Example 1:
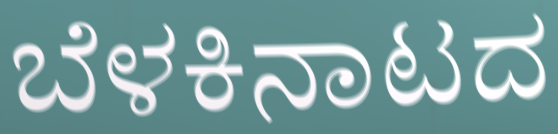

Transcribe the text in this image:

ಬೆಳಕಿನಾಟದ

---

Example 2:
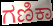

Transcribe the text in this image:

ಗಣಿಕಾ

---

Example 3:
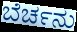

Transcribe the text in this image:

ಬೆರ್ಚನು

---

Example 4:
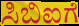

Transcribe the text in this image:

ಸಿಬಿಐಗೆ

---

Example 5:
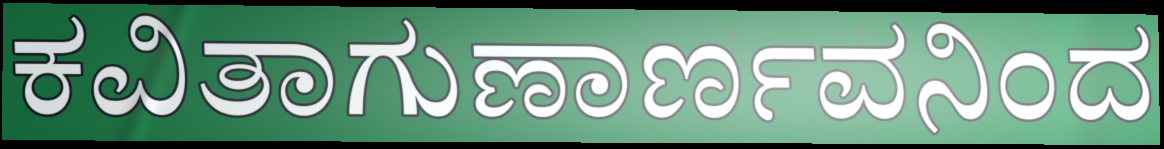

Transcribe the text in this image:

ಕವಿತಾಗುಣಾರ್ಣವನಿಂದ